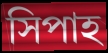
সিপাহ